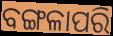
ବଙ୍ଗଳାପରି